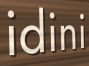
idini